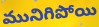
మునిగిపోయి